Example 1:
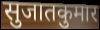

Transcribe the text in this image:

सुजातकुमार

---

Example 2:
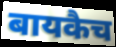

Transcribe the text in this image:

बायकैच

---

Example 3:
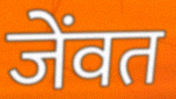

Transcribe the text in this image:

जेंवत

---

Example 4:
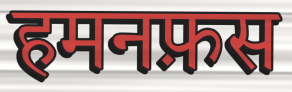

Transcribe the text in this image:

हमनफ़स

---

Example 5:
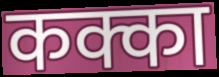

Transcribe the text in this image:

कक्का